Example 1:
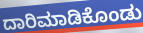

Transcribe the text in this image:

ದಾರಿಮಾಡಿಕೊಂಡು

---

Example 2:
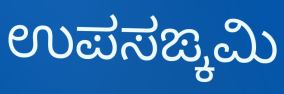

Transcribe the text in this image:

ಉಪಸಙ್ಕಮಿ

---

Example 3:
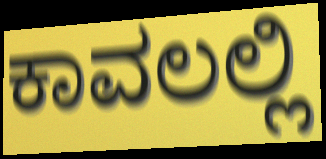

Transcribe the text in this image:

ಕಾವಲಲ್ಲಿ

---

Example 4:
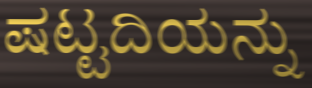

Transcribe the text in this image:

ಷಟ್ಟದಿಯನ್ನು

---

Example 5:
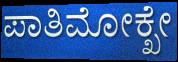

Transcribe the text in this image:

ಪಾತಿಮೋಕ್ಖೇ